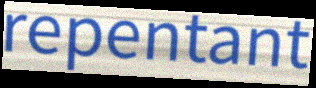
repentant